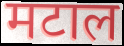
मटाल